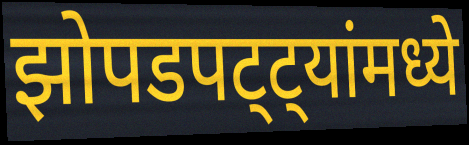
झोपडपट्ट्यांमध्ये